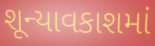
શૂન્યાવકાશમાં